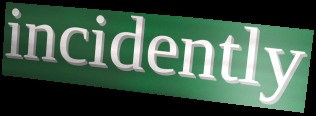
incidently